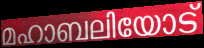
മഹാബലിയോട്